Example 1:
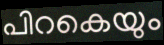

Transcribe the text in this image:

പിറകെയും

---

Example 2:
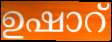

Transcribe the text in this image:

ഉഷാറ്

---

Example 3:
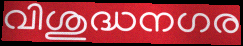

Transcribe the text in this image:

വിശുദ്ധനഗര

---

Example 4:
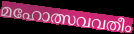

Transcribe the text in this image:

മഹോത്സവവതീം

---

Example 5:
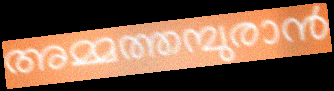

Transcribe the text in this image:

അമ്മത്തമ്പുരാൻ